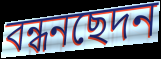
বন্ধনছেদন